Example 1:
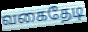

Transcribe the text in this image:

வகைதேடி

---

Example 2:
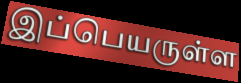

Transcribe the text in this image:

இப்பெயருள்ள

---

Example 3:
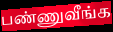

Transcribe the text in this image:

பண்ணுவீங்க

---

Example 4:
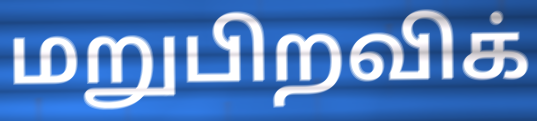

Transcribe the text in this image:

மறுபிறவிக்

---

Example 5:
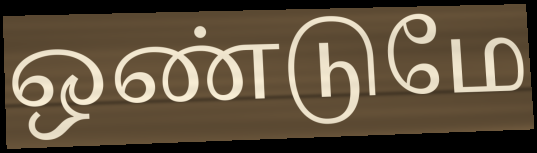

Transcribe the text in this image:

ஒண்டுமே